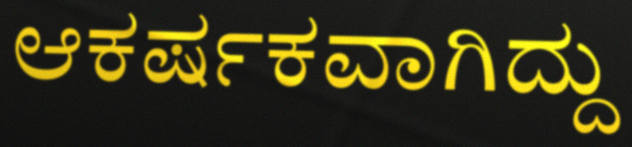
ಆಕರ್ಷಕವಾಗಿದ್ದು